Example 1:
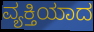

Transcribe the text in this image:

ವ್ಯಕ್ತಿಯಾದ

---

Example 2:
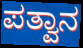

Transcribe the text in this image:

ಪತ್ವಾನ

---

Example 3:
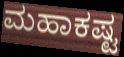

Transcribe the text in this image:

ಮಹಾಕಷ್ಟ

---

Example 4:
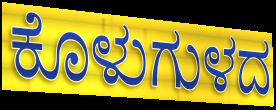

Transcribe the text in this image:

ಕೊಳುಗುಳದ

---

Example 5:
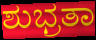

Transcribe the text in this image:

ಶುಭ್ರತಾ